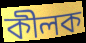
কীলক